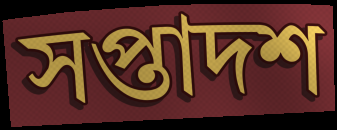
সপ্তাদশ